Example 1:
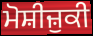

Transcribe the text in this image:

ਮੋਸ਼ੀਜ਼ੁਕੀ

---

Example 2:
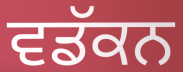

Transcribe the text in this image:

ਵਡੱਕਨ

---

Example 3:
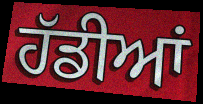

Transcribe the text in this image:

ਹੱਡੀਆਂ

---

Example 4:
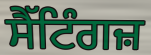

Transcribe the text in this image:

ਸੈੱਟਿੰਗਜ਼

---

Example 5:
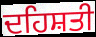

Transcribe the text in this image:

ਦਹਿਸ਼ਤੀ